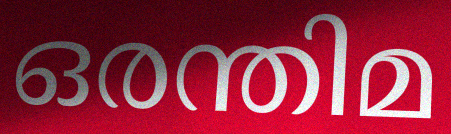
ഒരന്തിമ